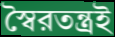
স্বৈরতন্ত্রই